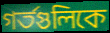
গর্তগুলিকে